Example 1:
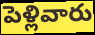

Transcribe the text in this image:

పెళ్లివారు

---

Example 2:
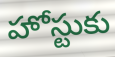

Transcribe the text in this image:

హోస్టుకు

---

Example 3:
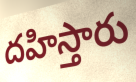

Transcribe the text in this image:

దహిస్తారు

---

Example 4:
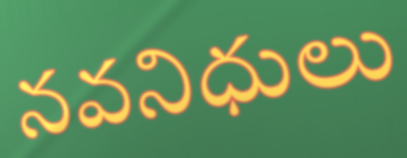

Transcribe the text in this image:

నవనిధులు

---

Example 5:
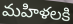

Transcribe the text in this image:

మహిళలకి